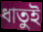
ধাতুই